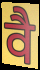
वै